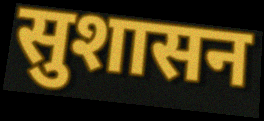
सुशासन